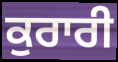
ਕੁਰਾਰੀ